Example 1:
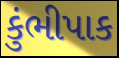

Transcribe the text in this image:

કુંભીપાક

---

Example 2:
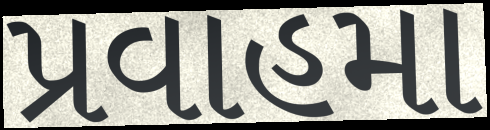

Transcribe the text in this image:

પ્રવાહમા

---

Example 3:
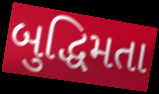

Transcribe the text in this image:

બુદ્ધિમતા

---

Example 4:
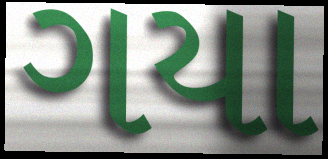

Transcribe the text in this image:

ગયા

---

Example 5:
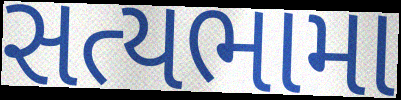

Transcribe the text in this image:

સત્યભામા